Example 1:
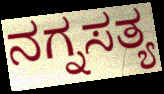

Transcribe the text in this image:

ನಗ್ನಸತ್ಯ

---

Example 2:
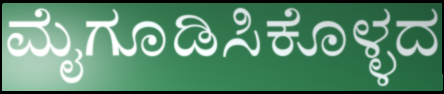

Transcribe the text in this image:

ಮೈಗೂಡಿಸಿಕೊಳ್ಳದ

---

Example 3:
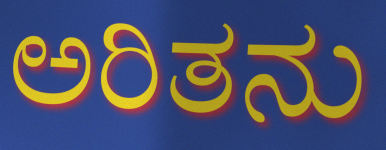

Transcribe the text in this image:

ಅರಿತನು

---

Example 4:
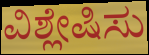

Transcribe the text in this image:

ವಿಶ್ಲೇಷಿಸು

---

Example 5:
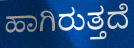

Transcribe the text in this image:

ಹಾಗಿರುತ್ತದೆ